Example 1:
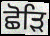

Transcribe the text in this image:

ਛੋੜਿ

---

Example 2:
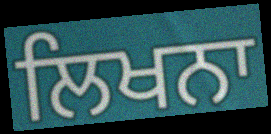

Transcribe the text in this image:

ਲਿਖਨਾ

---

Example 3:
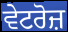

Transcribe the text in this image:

ਵੇਟਰੋਜ਼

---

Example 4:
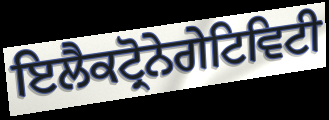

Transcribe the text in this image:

ਇਲੈਕਟ੍ਰੋਨੇਗੇਟਿਵਿਟੀ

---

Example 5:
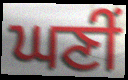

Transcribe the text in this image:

ਘਣੀਂ